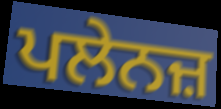
ਪਲੇਨਜ਼